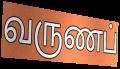
வருணப்